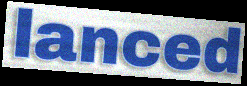
lanced